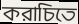
করাচিতে